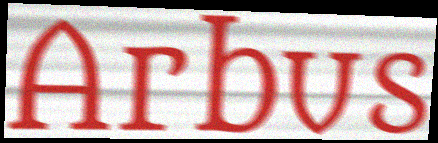
Arbus